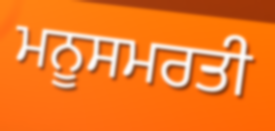
ਮਨੂਸਮਰਤੀ